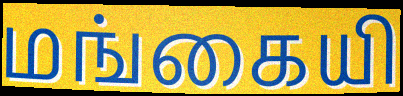
மங்கையி